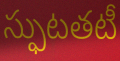
స్ఫుటతటీ